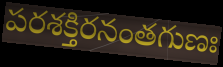
పరశక్తిరనంతగుణః